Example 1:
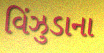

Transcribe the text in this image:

વિંઝુડાના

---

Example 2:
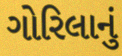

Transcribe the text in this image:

ગોરિલાનું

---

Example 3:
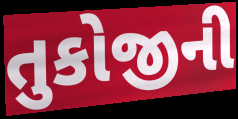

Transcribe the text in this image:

તુકોજીની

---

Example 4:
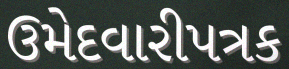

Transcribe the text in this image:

ઉમેદવારીપત્રક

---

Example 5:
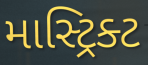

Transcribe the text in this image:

માસ્ટ્રિક્ટ